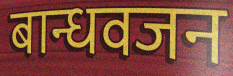
बान्धवजन